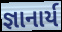
જ્ઞાનાર્ય